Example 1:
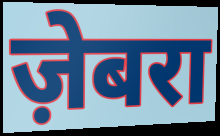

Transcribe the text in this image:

ज़ेबरा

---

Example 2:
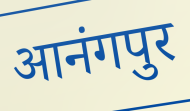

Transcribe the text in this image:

आनंगपुर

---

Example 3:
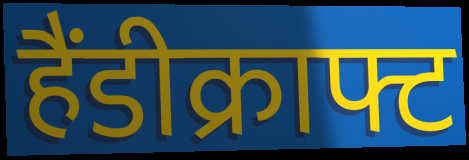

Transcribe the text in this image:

हैंडीक्राफ्ट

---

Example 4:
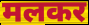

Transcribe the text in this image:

मलकर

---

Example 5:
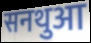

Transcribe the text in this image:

सनथुआ